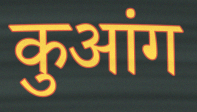
कुआंग